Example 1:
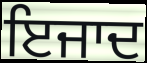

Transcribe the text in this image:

ਇਜਾਦ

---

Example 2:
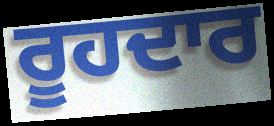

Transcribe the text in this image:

ਰੂਹਦਾਰ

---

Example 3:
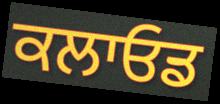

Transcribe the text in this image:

ਕਲਾਓਡ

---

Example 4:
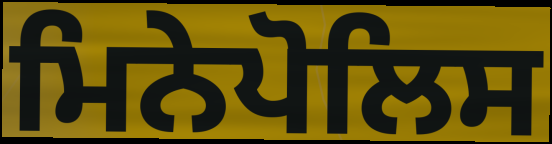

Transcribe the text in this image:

ਮਿਨੇਪੋਲਿਸ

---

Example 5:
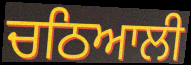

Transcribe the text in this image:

ਚਠਿਆਲੀ